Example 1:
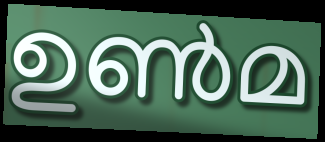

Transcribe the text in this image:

ഉൺമ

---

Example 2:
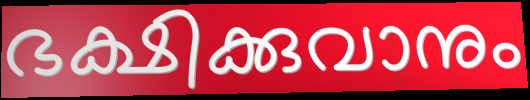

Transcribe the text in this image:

ഭക്ഷിക്കുവാനും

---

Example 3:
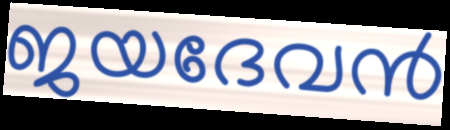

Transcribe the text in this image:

ജയദേവൻ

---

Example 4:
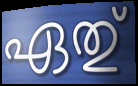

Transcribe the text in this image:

ഏതു്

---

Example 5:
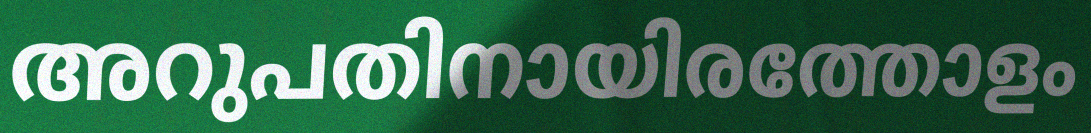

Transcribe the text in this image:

അറുപതിനായിരത്തോളം